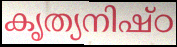
കൃത്യനിഷ്ഠ